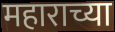
महाराच्या